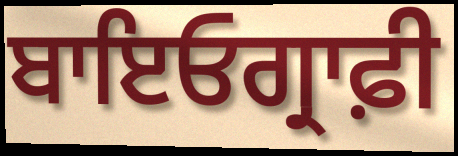
ਬਾਇਓਗ੍ਰਾਫ਼ੀ